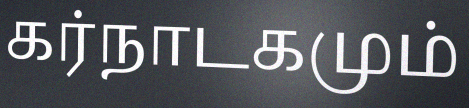
கர்நாடகமும்